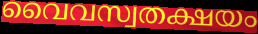
വൈവസ്വതക്ഷയം